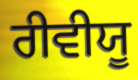
ਰੀਵੀਯੂ